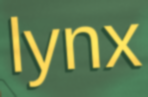
lynx